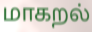
மாகறல்